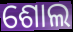
ଶୋଲ